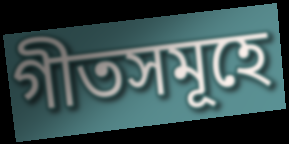
গীতসমূহে